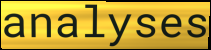
analyses